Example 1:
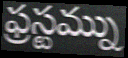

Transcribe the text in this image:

ఫ్రస్టమ్ను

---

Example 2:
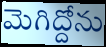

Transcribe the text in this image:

మెగిద్దోను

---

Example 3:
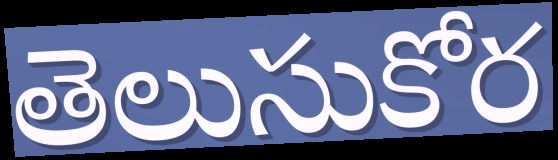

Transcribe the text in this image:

తెలుసుకోర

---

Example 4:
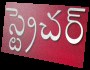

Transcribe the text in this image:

స్ట్రెచర్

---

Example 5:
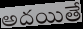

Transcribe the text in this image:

అదయితే